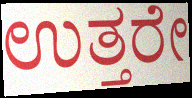
ಉತ್ತರೇ